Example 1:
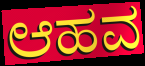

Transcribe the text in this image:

ಆಹವ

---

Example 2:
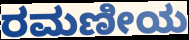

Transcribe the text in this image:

ರಮಣೀಯ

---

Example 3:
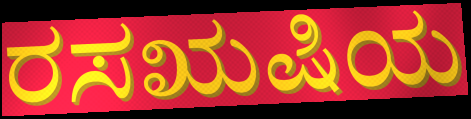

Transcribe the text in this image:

ರಸಋಷಿಯ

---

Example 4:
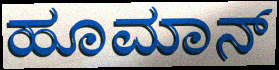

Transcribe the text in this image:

ಹೂಮಾನ್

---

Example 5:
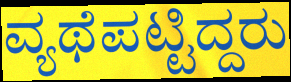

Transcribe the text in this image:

ವ್ಯಥೆಪಟ್ಟಿದ್ದರು